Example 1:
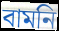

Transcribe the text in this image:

বামনি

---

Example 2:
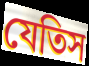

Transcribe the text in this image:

যেতিস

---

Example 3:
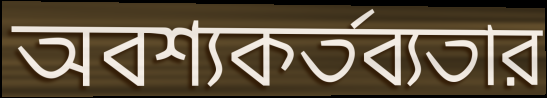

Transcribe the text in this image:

অবশ্যকর্তব্যতার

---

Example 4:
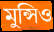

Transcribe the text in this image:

মুন্সিও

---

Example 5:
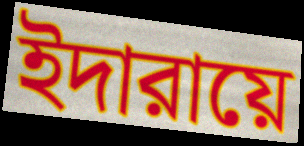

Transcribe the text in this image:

ইদারায়ে